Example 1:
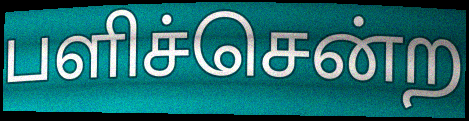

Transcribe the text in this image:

பளிச்சென்ற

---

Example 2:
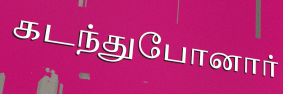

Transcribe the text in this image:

கடந்துபோனார்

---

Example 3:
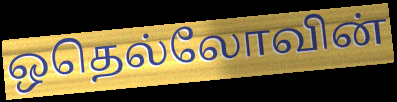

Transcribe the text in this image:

ஒதெல்லோவின்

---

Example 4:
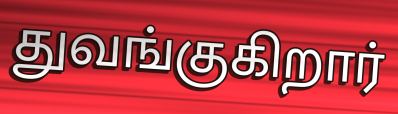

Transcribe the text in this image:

துவங்குகிறார்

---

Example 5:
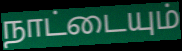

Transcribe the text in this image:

நாட்டையும்